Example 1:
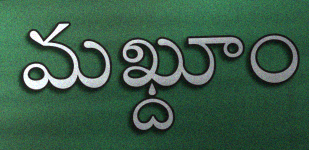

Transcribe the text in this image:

మఖ్దూం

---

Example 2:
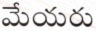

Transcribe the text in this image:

మేయరు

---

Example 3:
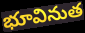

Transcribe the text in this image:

భూవినుత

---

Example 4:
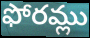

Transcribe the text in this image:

ఫోరమ్లు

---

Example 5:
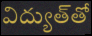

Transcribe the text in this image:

విద్యుత్‌తో